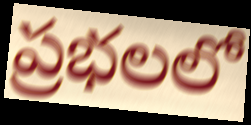
ప్రభలలో